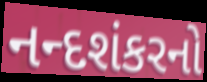
નન્દશંકરનો